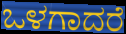
ಒಳಗಾದರೆ